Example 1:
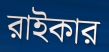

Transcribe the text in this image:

রাইকার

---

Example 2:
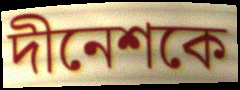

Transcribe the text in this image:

দীনেশকে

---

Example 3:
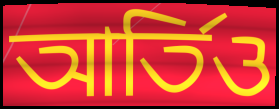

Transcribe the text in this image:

আর্তিও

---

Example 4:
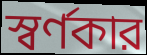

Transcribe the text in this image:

স্বর্ণকার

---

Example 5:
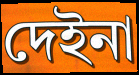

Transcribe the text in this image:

দেইনা